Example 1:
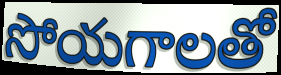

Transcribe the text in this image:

సోయగాలతో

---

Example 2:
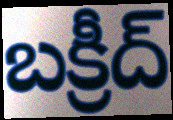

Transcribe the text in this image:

బక్రీద్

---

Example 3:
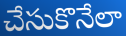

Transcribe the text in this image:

చేసుకొనేలా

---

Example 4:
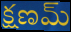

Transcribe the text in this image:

క్షణమ్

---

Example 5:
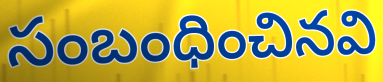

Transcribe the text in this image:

సంబంధించినవి